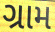
ગ્રામ